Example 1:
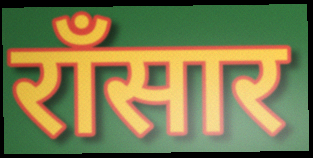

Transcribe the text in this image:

राँसार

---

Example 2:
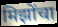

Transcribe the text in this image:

मिझोंचा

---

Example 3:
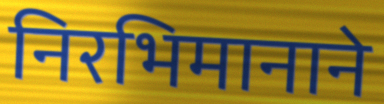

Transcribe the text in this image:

निरभिमानाने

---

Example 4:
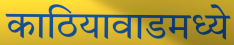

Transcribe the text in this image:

काठियावाडमध्ये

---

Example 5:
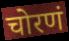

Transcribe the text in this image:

चोरणं